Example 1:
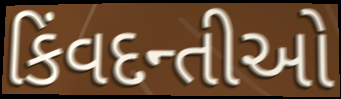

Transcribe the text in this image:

કિંવદન્તીઓ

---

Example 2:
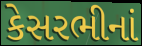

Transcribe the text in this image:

કેસરભીનાં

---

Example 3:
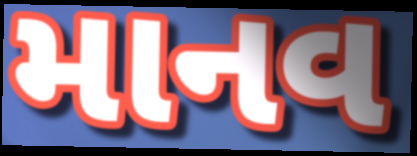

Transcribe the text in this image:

માનવ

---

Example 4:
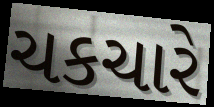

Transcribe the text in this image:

ચકચારે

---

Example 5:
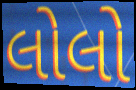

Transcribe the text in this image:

લોલો